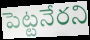
పెట్టనేరని